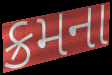
ક્રમના